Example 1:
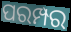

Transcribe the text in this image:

ପରମ୍ପର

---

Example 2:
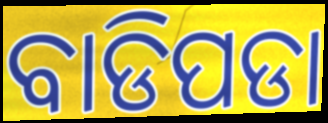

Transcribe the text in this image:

ବାଡିପଡା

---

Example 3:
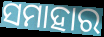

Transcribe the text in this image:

ସମାହାର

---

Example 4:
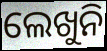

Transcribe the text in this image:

ଲେଖୁନି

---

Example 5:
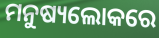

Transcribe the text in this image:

ମନୁଷ୍ୟଲୋକରେ